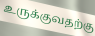
உருக்குவதற்கு